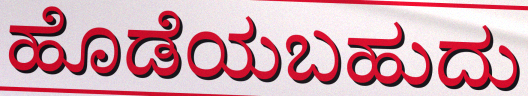
ಹೊಡೆಯಬಹುದು